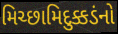
મિચ્છામિદુક્કડંનો